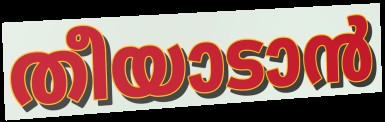
തീയാടാൻ